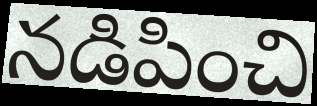
నడిపించి